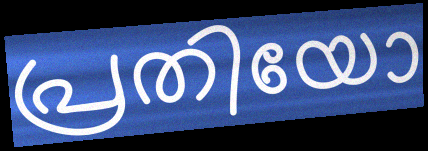
പ്രതിയോ